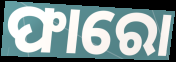
ଫାରୋ